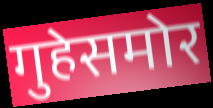
गुहेसमोर